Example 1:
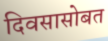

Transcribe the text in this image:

दिवसासोबत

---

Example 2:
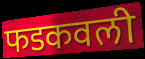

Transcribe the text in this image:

फडकवली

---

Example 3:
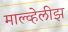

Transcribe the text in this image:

माल्व्हेलीझ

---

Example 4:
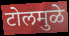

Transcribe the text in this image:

टोलमुळे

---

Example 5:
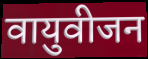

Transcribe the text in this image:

वायुवीजन